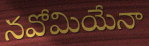
నవోమియేనా